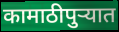
कामाठीपुर्‍यात